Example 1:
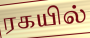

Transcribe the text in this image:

ரகயில்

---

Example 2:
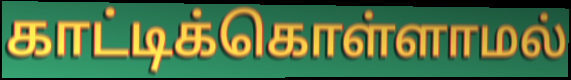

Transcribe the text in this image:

காட்டிக்கொள்ளாமல்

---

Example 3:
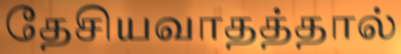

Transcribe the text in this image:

தேசியவாதத்தால்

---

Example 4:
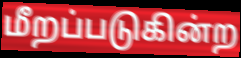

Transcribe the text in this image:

மீறப்படுகின்ற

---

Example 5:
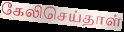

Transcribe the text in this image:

கேலிசெய்தாள்